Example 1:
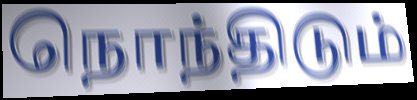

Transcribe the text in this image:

நொந்திடும்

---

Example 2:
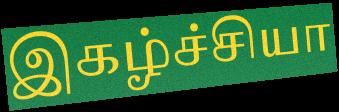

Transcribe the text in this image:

இகழ்ச்சியா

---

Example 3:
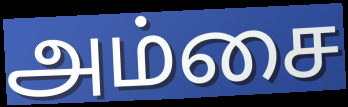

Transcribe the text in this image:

அம்சை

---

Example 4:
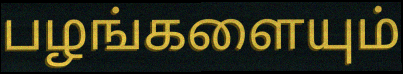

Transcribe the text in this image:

பழங்களையும்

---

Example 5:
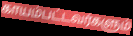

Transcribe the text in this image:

காயம்பட்டவர்களும்